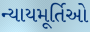
ન્યાયમૂર્તિઓ